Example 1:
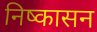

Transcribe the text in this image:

निष्कासन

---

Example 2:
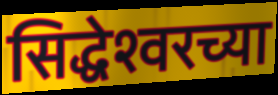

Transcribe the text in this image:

सिद्धेश्वरच्या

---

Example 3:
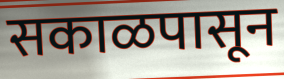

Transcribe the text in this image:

सकाळपासून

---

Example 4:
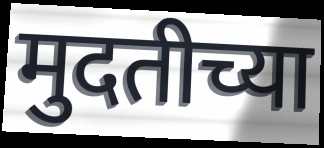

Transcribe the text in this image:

मुदतीच्या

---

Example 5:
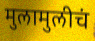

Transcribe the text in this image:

मुलामुलीचं